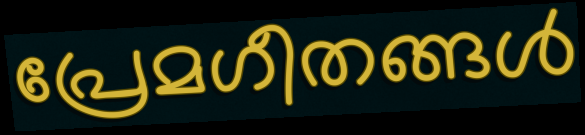
പ്രേമഗീതങ്ങൾ